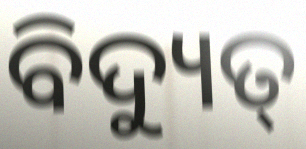
ବିଦ୍ୟୁତ୍